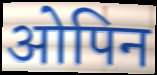
ओपिन